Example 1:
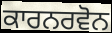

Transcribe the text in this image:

ਕਾਰਨਰਵੋਨ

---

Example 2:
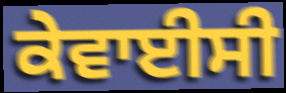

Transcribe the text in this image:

ਕੇਵਾਈਸੀ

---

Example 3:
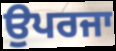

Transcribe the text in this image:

ਉਪਰਜਾ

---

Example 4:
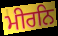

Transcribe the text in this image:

ਮੀਰਨਿ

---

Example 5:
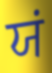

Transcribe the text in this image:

ਯਂ